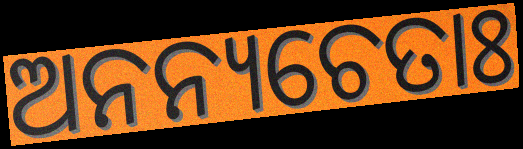
ଅନନ୍ୟଚେତାଃ